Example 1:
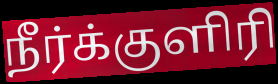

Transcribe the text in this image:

நீர்க்குளிரி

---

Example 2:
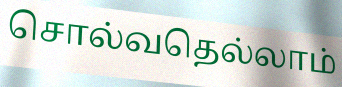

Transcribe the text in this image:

சொல்வதெல்லாம்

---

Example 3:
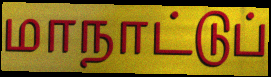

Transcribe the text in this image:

மாநாட்டுப்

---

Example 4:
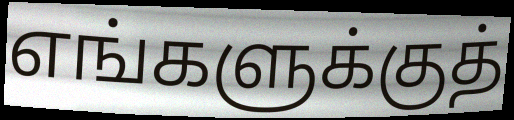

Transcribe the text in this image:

எங்களுக்குத்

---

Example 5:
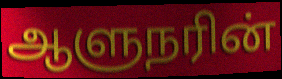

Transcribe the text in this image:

ஆளுநரின்